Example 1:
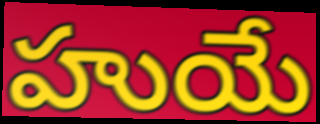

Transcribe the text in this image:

హుయే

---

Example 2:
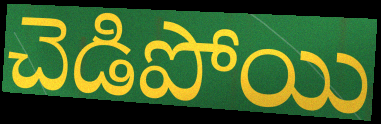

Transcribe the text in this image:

చెడిపోయి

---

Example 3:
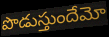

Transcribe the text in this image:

పొడుస్తుందేమో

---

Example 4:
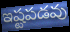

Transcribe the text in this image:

ఇష్టపడవు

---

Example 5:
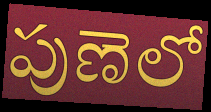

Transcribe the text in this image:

పుణెలో